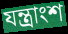
যন্ত্রাংশ